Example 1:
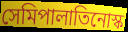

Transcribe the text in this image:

সেমিপালাতিনোস্ক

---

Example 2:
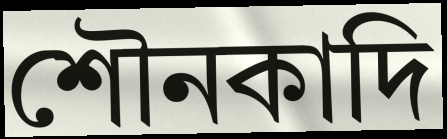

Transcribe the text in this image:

শৌনকাদি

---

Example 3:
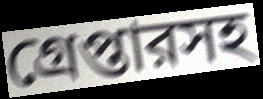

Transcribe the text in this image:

গ্রেপ্তারসহ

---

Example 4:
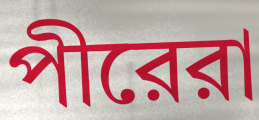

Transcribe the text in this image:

পীরেরা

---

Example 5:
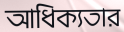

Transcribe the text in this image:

আধিক্যতার